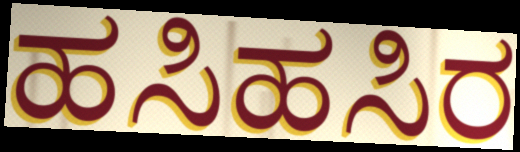
ಹಸಿಹಸಿರ